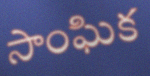
సాంఘిక